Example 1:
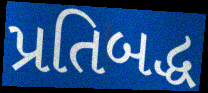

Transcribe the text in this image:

પ્રતિબદ્ધ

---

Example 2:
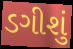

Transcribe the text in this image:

ડગીશું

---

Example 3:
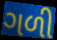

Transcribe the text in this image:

ગળી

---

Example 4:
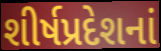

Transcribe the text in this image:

શીર્ષપ્રદેશનાં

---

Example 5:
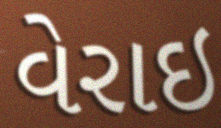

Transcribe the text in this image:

વેરાઇ